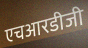
एचआरडीजी